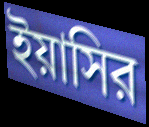
ইয়াসির